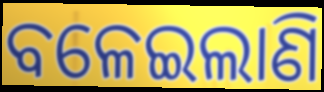
ବଳେଇଲାଣି